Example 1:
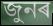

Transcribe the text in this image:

জুনৰ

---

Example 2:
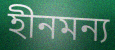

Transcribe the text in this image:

হীনমন্য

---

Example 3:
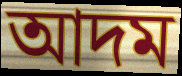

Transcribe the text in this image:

আদম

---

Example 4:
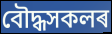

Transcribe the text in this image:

বৌদ্ধসকলৰ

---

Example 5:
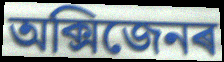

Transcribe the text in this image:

অক্সিজেনৰ